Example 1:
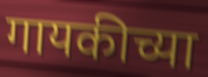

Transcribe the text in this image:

गायकीच्या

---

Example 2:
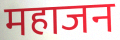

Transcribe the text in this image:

महाजन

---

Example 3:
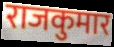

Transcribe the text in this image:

राजकुमार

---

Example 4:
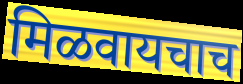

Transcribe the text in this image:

मिळवायचाच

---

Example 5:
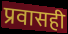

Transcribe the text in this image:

प्रवासही